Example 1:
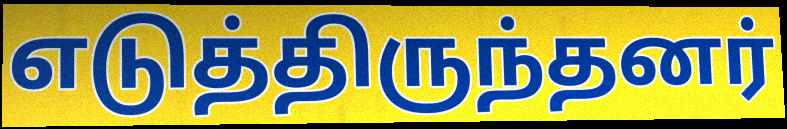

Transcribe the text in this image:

எடுத்திருந்தனர்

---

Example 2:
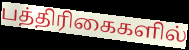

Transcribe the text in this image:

பத்திரிகைகளில்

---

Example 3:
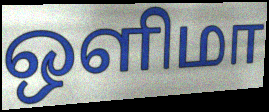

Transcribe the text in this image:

ஒளிமா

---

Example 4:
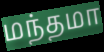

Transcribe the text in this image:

மந்தமா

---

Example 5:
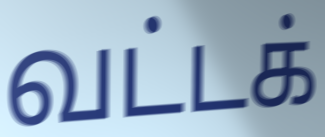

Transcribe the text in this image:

வட்டக்